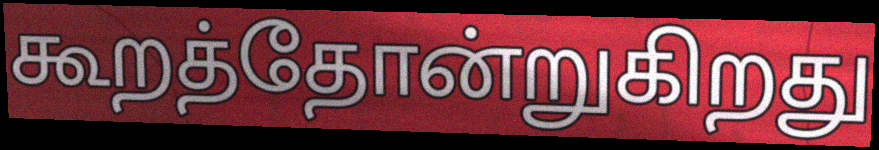
கூறத்தோன்றுகிறது